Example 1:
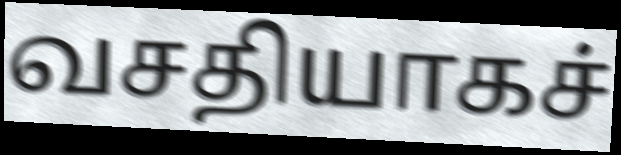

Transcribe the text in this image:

வசதியாகச்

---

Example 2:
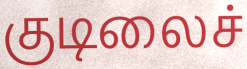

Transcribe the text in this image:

குடிலைச்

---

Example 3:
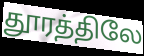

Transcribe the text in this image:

தூரத்திலே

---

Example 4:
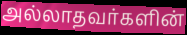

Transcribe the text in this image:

அல்லாதவர்களின்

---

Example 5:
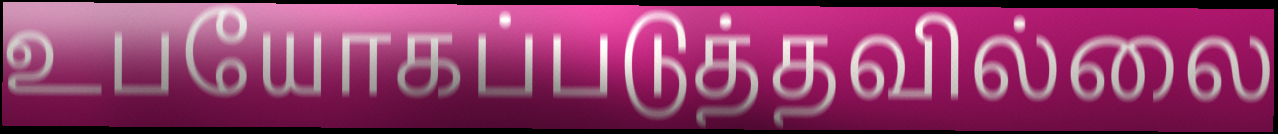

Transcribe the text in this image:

உபயோகப்படுத்தவில்லை